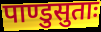
पाण्डुसुताः